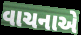
વાચનાએ